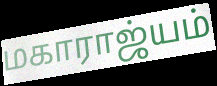
மகாராஜ்யம்